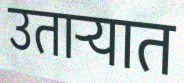
उताऱ्यात